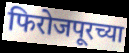
फिरोजपूरच्या